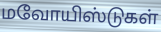
மவோயிஸ்டுகள்